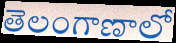
తెలంగాణాలో